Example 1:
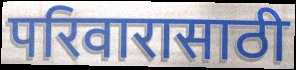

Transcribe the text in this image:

परिवारासाठी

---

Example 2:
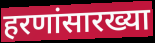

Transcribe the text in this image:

हरणांसारख्या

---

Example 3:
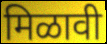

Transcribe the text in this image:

मिळावी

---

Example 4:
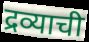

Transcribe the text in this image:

द्रव्याची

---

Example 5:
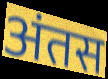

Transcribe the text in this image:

अंतस